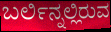
ಬರ್ಲಿನ್ನಲ್ಲಿರುವ